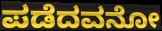
ಪಡೆದವನೋ